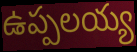
ఉప్పలయ్య